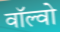
वॉल्‍वो